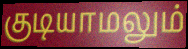
குடியாமலும்